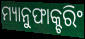
ମ୍ୟାନୁଫାକ୍ଚରିଂ